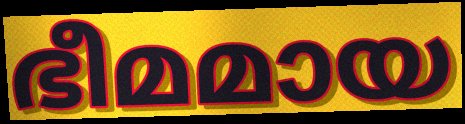
ഭീമമായ